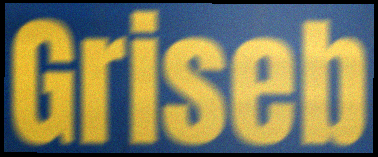
Griseb